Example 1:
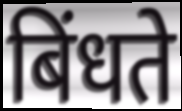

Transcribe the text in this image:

बिंधते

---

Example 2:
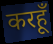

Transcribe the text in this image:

करहूँ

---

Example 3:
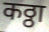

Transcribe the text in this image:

कठ्ठा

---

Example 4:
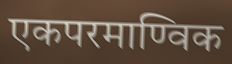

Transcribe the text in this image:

एकपरमाण्विक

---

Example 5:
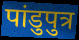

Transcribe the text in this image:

पांडुपुत्र